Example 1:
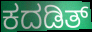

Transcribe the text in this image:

ಕದಡಿತ್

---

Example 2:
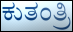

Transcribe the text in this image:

ಕುತಂತ್ರಿ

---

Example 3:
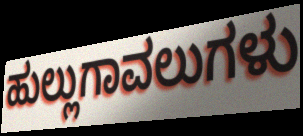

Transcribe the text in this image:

ಹುಲ್ಲುಗಾವಲುಗಳು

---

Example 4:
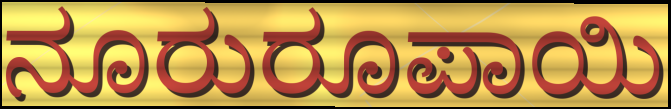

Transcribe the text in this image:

ನೂರುರೂಪಾಯಿ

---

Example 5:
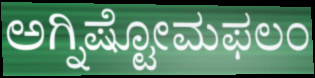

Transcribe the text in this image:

ಅಗ್ನಿಷ್ಟೋಮಫಲಂ